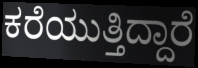
ಕರೆಯುತ್ತಿದ್ದಾರೆ